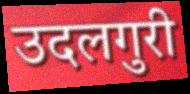
उदलगुरी